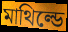
মাথিল্ডে